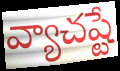
వ్యాచష్టే